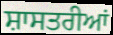
ਸ਼ਾਸਤਰੀਆਂ